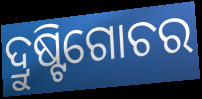
ଦ୍ରୁଷ୍ଟିଗୋଚର